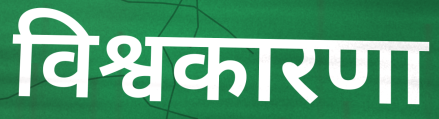
विश्वकारणा